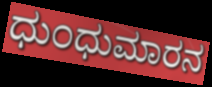
ಧುಂಧುಮಾರನ